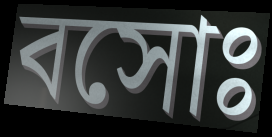
বসোঃ